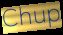
Chup